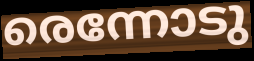
രെന്നോടു